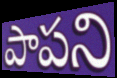
పాపని